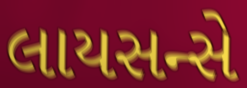
લાયસન્સે